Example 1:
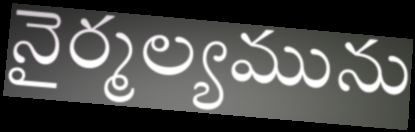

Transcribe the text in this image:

నైర్మల్యమును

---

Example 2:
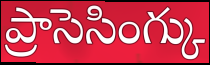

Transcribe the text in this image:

ప్రాసెసింగ్కు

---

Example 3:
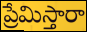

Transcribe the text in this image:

ప్రేమిస్తారా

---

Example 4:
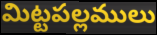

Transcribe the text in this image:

మిట్టపల్లములు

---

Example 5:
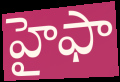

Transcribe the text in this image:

హైఫా